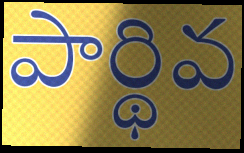
పార్థివ